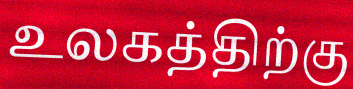
உலகத்திற்கு